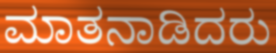
ಮಾತನಾಡಿದರು